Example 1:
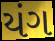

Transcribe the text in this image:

યંગ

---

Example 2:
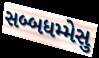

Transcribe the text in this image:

સબ્બધમ્મેસુ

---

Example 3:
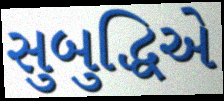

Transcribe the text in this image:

સુબુદ્ધિએ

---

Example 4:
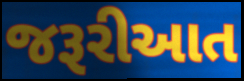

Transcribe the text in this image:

જરૂરીઆત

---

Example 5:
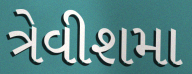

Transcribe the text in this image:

ત્રેવીશમા